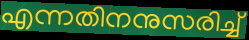
എന്നതിനനുസരിച്ച്